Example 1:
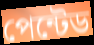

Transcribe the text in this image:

পেন্টেড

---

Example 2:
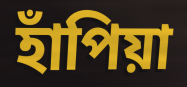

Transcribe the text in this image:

হাঁপিয়া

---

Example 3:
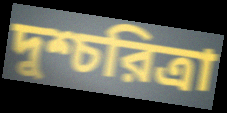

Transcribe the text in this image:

দুশ্চরিত্রা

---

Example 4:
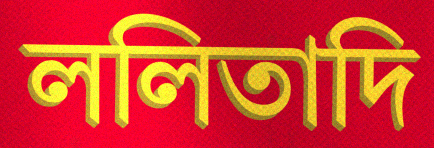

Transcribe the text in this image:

ললিতাদি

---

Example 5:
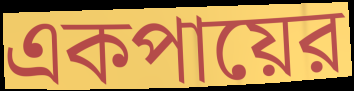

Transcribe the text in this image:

একপায়ের